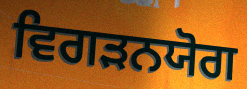
ਵਿਗੜਨਯੋਗ